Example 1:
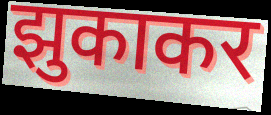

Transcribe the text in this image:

झुकाकर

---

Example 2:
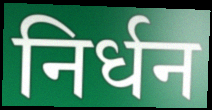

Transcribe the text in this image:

निर्धन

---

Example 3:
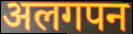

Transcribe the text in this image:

अलगपन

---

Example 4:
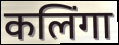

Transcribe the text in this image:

कलिंगा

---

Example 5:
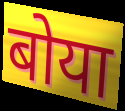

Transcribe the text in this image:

बोया